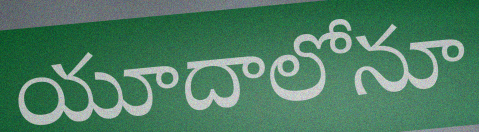
యూదాలోనూ